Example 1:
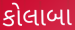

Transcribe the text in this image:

કોલાબા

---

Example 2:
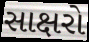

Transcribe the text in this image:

સાક્ષરો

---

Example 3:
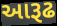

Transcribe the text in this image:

આરૂઢ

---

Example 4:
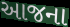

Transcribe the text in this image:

આજના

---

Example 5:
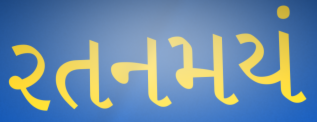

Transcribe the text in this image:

રતનમયં